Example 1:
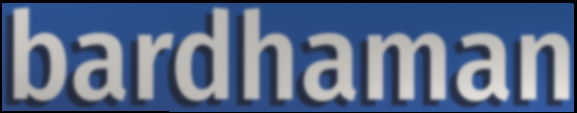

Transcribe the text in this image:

bardhaman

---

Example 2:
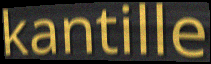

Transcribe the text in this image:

kantille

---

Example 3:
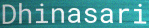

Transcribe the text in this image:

Dhinasari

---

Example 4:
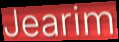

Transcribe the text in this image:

Jearim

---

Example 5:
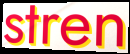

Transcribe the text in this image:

stren